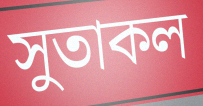
সুতাকল